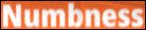
Numbness